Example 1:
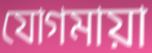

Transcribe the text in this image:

যোগমায়া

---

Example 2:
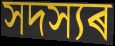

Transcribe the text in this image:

সদস্যৰ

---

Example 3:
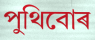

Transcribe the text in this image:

পুথিবোৰ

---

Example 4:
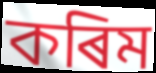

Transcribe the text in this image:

কৰিম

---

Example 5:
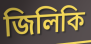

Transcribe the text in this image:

জিলিকি